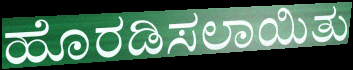
ಹೊರಡಿಸಲಾಯಿತು